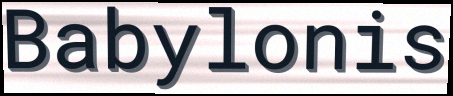
Babylonis